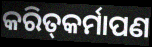
କରିତ୍‌କର୍ମାପଣ